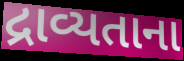
દ્રાવ્યતાના